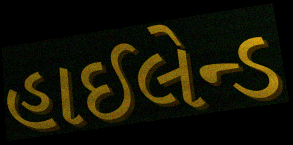
હાઈલેન્ડ